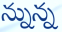
న్నున్న